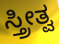
ಸ್ತ್ರೀತ್ವ